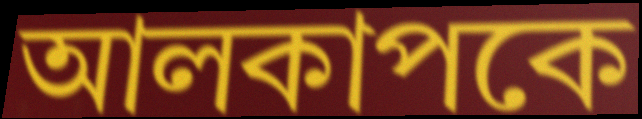
আলকাপকে